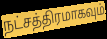
நட்சத்திரமாகவும்